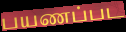
பயணப்பட